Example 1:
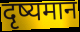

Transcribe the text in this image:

दृष्यमान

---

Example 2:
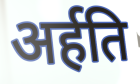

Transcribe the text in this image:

अर्हति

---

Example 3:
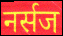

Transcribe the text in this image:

नर्सज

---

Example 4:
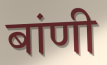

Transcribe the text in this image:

बांणी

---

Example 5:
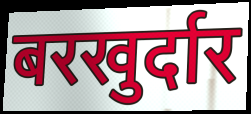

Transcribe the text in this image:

बरखुर्दार